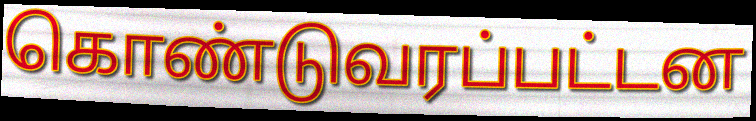
கொண்டுவரப்பட்டன